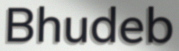
Bhudeb